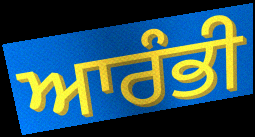
ਆਰੰਭੀ